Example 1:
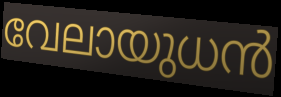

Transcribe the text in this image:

വേലായുധൻ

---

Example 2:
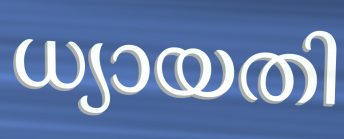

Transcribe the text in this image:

ധ്യായതി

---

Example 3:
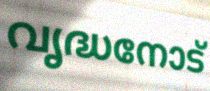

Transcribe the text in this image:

വൃദ്ധനോട്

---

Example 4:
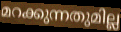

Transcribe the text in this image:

മറക്കുന്നതുമില്ല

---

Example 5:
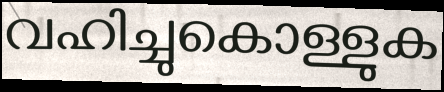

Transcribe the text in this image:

വഹിച്ചുകൊള്ളുക